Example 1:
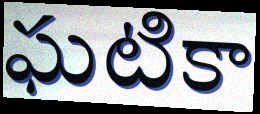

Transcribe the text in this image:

ఘటికా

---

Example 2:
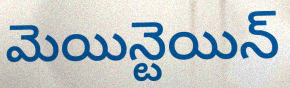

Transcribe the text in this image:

మెయిన్టెయిన్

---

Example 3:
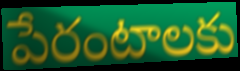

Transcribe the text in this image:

పేరంటాలకు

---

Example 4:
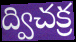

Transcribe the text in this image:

ద్విచక్ర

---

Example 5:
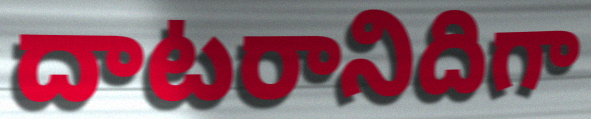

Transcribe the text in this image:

దాటరానిదిగా